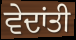
ਵੇਦਾਂਤੀ